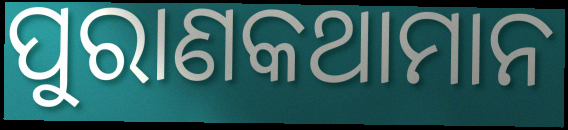
ପୁରାଣକଥାମାନ